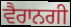
ਵੈਰਾਨਗੀ